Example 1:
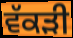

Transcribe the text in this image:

ਵੱਕੜੀ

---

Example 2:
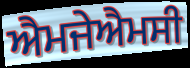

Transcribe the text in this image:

ਐਮਜੇਐਮਸੀ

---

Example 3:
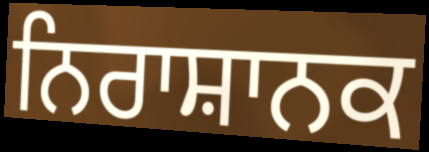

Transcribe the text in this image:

ਨਿਰਾਸ਼ਾਨਕ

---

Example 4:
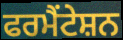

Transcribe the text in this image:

ਫਰਮੈਂਟੇਸ਼ਨ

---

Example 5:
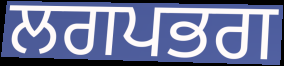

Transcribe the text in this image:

ਲਗਪਭਗ